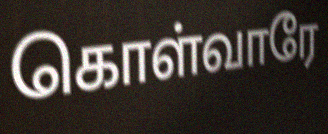
கொள்வாரே